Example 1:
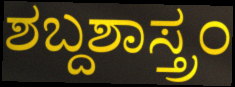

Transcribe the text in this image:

ಶಬ್ದಶಾಸ್ತ್ರಂ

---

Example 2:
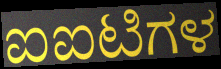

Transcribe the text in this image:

ಐಐಟಿಗಳ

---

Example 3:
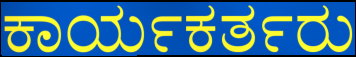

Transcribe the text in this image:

ಕಾರ್ಯಕರ್ತರು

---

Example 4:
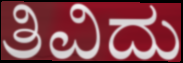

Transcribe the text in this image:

ತಿವಿದು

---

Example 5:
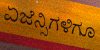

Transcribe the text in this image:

ಏಜೆನ್ಸಿಗಳಿಗೂ